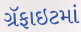
ગ્રૅફાઇટમાં